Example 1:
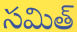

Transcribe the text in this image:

సమిత్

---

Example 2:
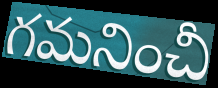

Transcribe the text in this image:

గమనించీ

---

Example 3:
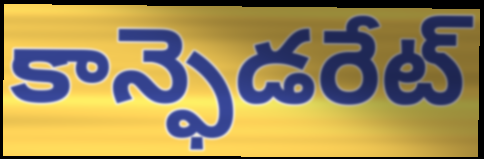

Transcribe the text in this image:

కాన్ఫెడరేట్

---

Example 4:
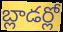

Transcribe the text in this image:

బ్లాడర్లో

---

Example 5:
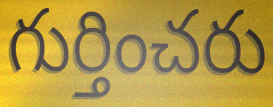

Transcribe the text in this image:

గుర్తించరు